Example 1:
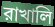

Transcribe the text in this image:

রাখালি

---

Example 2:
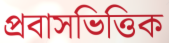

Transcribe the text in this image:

প্রবাসভিত্তিক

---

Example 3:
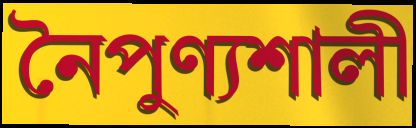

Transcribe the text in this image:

নৈপুণ্যশালী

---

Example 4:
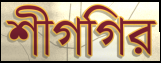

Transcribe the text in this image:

শীগগির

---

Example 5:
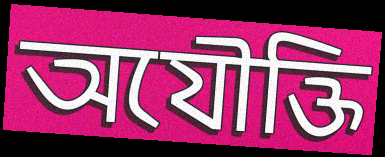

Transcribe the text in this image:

অযৌক্তি